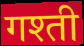
गश्ती